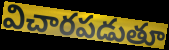
విచారపడుతూ